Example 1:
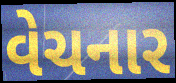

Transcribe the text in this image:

વેચનાર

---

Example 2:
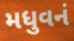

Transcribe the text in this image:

મધુવનં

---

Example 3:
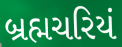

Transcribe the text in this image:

બ્રહ્મચરિયં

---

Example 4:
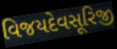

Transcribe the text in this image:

વિજયદેવસૂરિજી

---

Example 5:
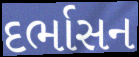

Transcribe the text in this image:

દર્ભાસન